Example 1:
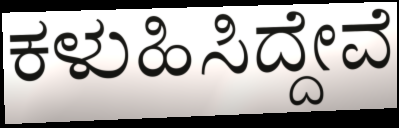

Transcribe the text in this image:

ಕಳುಹಿಸಿದ್ದೇವೆ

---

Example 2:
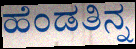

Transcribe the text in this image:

ಹೆಂಡತಿನ್ನ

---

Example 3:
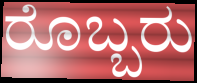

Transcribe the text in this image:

ರೊಬ್ಬರು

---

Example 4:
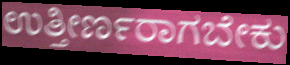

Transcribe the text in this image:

ಉತ್ತೀರ್ಣರಾಗಬೇಕು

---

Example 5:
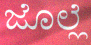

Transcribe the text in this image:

ಜೊಲ್ಲೆ